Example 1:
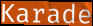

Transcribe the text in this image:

Karade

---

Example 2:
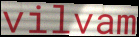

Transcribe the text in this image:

vilvam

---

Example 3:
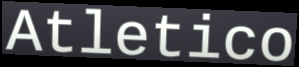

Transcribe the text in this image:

Atletico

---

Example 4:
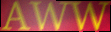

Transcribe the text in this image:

AWW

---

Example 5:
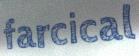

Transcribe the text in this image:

farcical